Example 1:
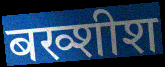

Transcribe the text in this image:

बख्शीश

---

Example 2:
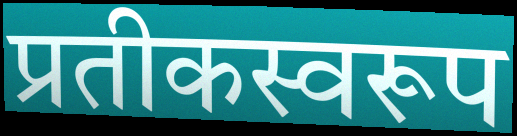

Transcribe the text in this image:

प्रतीकस्वरूप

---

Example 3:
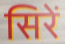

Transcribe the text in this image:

सिरें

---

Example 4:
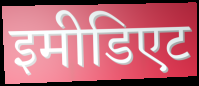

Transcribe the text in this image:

इमीडिएट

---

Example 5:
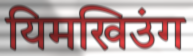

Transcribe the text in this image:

यिमखिउंग